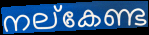
നല്കേണ്ട